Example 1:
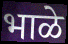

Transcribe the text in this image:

भाळे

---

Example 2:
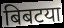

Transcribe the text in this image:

बिबटया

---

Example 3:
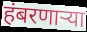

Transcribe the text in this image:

हंबरणाऱ्या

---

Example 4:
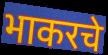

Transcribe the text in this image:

भाकरचे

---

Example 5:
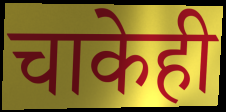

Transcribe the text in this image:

चाकेही